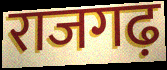
राजगढ़